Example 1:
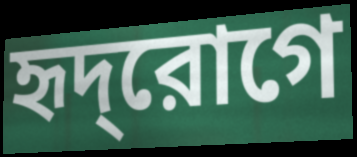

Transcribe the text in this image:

হৃদ্‌রোগে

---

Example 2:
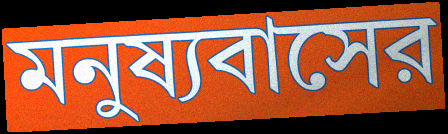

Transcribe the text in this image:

মনুষ্যবাসের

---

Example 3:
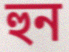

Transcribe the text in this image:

হুন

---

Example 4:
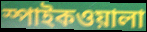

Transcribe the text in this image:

স্পাইকওয়ালা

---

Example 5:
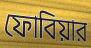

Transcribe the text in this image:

ফোবিয়ার